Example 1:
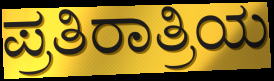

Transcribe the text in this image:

ಪ್ರತಿರಾತ್ರಿಯ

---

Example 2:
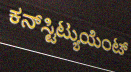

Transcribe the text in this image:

ಕನ್‌ಸ್ಟಿಟ್ಯುಯೆಂಟ್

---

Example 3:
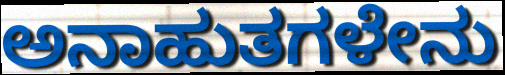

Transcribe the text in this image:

ಅನಾಹುತಗಳೇನು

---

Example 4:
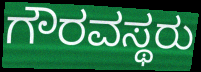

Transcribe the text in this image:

ಗೌರವಸ್ಥರು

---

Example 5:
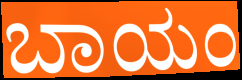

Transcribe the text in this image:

ಬಾಯಂ